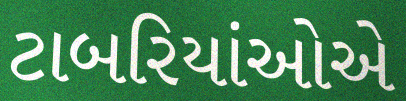
ટાબરિયાંઓએ